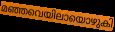
മഞ്ഞവെയിലായൊഴുകി